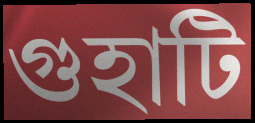
গুহাটি